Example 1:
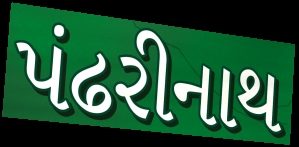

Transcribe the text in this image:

પંઢરીનાથ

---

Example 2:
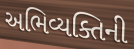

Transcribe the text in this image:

અભિવ્યક્તિની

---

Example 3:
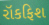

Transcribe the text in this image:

રૉકફિશ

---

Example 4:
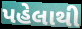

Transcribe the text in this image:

પહેલાથી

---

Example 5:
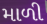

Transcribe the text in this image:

માળી